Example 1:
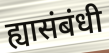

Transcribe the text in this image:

ह्यासंबंधी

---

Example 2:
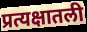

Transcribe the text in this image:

प्रत्यक्षातली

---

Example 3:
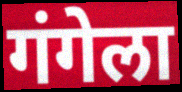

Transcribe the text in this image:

गंगेला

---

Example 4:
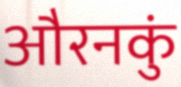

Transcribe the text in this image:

औरनकुं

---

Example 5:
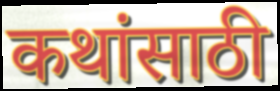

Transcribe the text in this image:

कथांसाठी